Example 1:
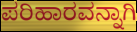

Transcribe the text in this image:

ಪರಿಹಾರವನ್ನಾಗಿ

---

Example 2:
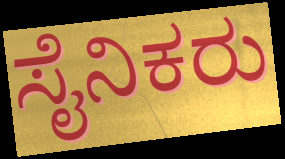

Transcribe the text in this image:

ಸೈನಿಕರು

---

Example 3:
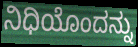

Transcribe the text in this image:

ನಿಧಿಯೊಂದನ್ನು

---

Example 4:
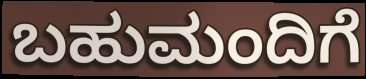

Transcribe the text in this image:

ಬಹುಮಂದಿಗೆ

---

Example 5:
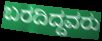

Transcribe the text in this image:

ಬರದಿದ್ದವರು